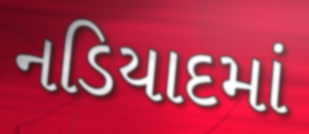
નડિયાદમાં